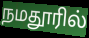
நமதூரில்